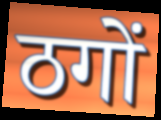
ठगों